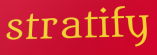
stratify